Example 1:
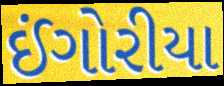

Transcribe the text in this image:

ઈંગોરીયા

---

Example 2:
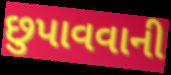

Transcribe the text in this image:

છુપાવવાની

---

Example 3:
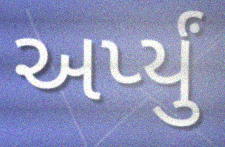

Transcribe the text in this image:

અર્પ્યું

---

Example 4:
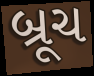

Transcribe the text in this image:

બ્રૂચ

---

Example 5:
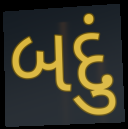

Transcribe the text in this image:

બદું